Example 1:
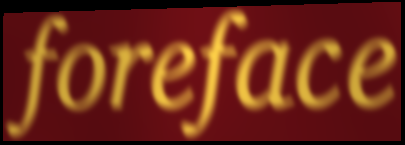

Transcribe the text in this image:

foreface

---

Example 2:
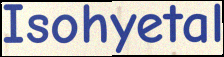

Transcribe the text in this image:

Isohyetal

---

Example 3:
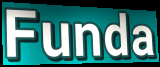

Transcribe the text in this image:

Funda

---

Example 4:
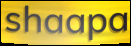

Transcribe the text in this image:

shaapa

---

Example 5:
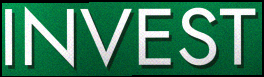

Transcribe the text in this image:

INVEST